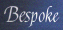
Bespoke